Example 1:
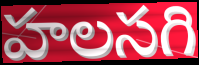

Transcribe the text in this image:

హలసగి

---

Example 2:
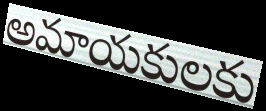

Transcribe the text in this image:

అమాయకులకు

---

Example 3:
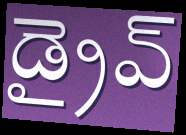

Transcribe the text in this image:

డ్రైవ్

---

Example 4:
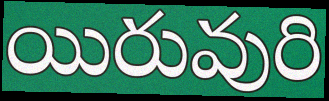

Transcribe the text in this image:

యిరువురి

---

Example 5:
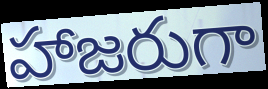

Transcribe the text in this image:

హాజరుగా